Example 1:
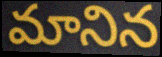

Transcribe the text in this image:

మానిన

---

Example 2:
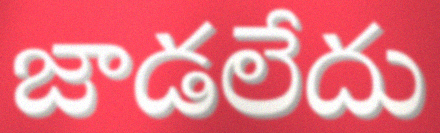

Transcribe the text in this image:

జాడలేదు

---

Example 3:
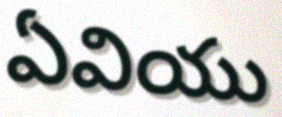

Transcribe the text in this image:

ఏవియు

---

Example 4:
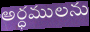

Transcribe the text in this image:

అర్ధములను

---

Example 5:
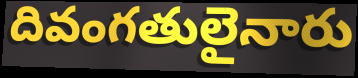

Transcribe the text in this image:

దివంగతులైనారు